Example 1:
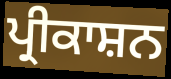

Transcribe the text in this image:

ਪ੍ਰੀਕਾਸ਼ਨ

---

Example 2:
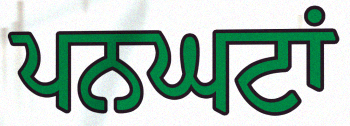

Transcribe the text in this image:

ਪਨਘਟਾਂ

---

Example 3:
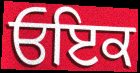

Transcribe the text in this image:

ਓਇਕ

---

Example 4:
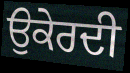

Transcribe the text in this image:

ਉਕੇਰਦੀ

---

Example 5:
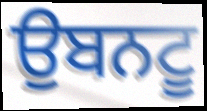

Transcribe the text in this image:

ਉਬਨਟੂ